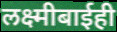
लक्ष्मीबाईही